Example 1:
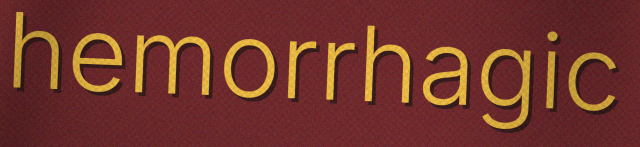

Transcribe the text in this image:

hemorrhagic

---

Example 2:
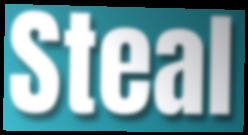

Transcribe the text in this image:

Steal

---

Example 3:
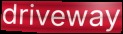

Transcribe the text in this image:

driveway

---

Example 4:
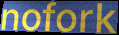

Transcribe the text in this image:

nofork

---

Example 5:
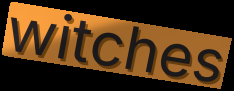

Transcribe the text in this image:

witches